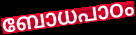
ബോധപാഠം